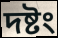
দষ্টং